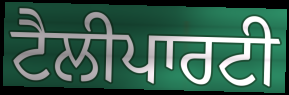
ਟੈਲੀਪਾਰਟੀ